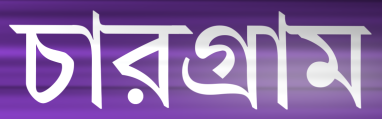
চারগ্রাম